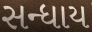
સન્ધાય